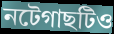
নটেগাছটিও